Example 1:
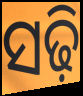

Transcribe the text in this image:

ସଢ଼ି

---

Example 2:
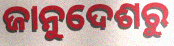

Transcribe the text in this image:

ଜାନୁଦେଶରୁ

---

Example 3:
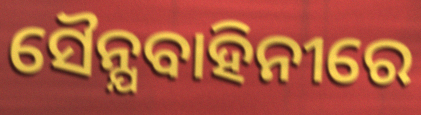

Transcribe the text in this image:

ସୈନ୍ଯବାହିନୀରେ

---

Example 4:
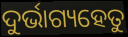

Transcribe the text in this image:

ଦୁର୍ଭାଗ୍ୟହେତୁ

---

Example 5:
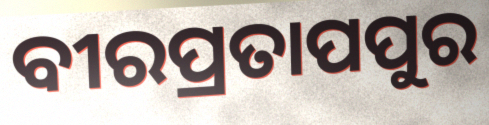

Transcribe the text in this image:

ବୀରପ୍ରତାପପୁର